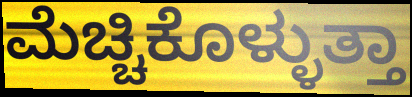
ಮೆಚ್ಚಿಕೊಳ್ಳುತ್ತಾ